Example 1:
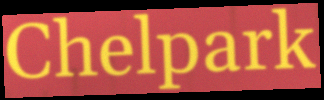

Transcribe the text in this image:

Chelpark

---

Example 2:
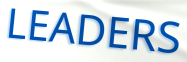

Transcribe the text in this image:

LEADERS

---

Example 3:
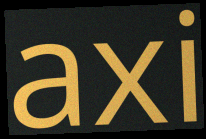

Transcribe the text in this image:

axi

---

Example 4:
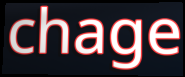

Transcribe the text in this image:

chage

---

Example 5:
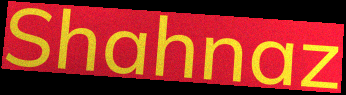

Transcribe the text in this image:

Shahnaz